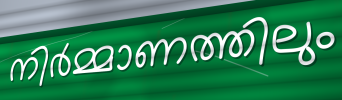
നിർമ്മാണത്തിലും